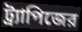
ট্র্যাপিজের